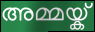
അമ്മയ്ക്